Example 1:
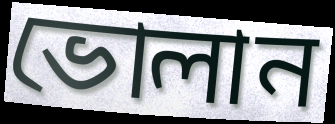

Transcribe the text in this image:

ভোলান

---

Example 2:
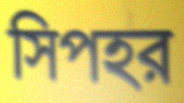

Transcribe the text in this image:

সিপহর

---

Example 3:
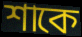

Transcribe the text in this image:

শাকে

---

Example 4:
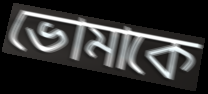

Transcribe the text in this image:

ভোমাকে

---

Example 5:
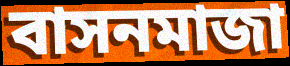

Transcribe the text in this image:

বাসনমাজা